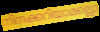
നിനക്കറിയാമല്ലൊ